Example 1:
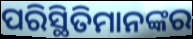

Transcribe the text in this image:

ପରିସ୍ଥିତିମାନଙ୍କର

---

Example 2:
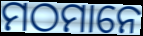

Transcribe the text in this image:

ମଠମାନେ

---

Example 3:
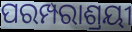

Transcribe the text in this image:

ପରମ୍ପରାଶ୍ରୟୀ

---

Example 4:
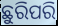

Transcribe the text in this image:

ଛୁରିପରି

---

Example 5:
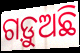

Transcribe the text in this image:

ଗଡ଼ୁଅଛି